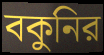
বকুনির